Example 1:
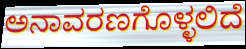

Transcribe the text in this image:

ಅನಾವರಣಗೊಳ್ಳಲಿದೆ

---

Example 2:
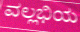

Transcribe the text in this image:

ವಲ್ಲಭಿಯ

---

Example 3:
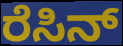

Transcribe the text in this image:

ರೆಸಿನ್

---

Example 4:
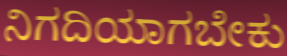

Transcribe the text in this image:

ನಿಗದಿಯಾಗಬೇಕು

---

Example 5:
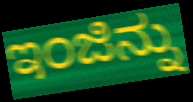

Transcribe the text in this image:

ಇಂಜಿನ್ನು